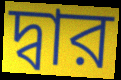
দ্বার